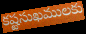
కష్టసుఖములకు